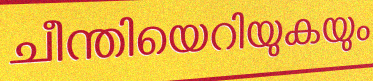
ചീന്തിയെറിയുകയും